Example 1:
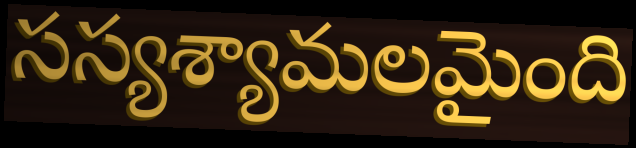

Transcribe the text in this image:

సస్యశ్యామలమైంది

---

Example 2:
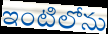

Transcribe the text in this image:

ఇంటిలోను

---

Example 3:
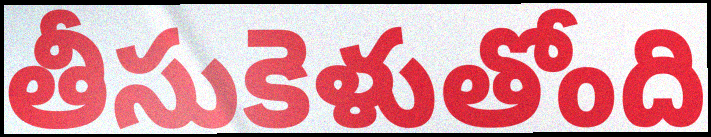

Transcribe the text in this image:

తీసుకెళుతోంది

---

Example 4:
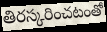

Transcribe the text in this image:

తిరస్కరించటంతో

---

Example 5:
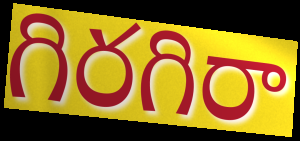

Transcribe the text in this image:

గిరగిరా